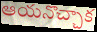
ఆయనొచ్చాక